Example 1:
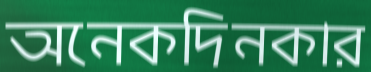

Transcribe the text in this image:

অনেকদিনকার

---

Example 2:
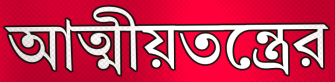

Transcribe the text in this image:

আত্মীয়তন্ত্রের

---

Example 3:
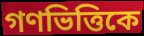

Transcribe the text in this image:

গণভিত্তিকে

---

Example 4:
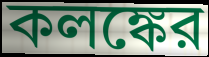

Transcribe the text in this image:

কলঙ্কের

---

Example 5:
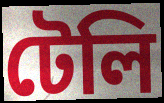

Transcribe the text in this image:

টেলি